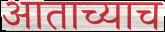
आताच्याच